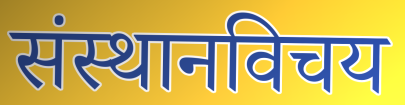
संस्थानविचय